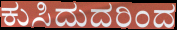
ಕುಸಿದುದರಿಂದ